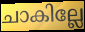
ചാകില്ലേ